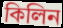
কিলিন